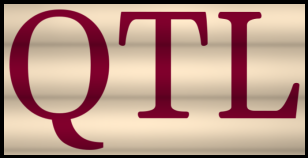
QTL